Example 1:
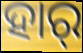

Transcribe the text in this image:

ହାର୍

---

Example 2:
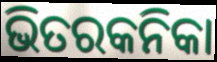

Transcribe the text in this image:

ଭିତରକନିକା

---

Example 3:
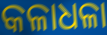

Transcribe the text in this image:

କଳାଧଳା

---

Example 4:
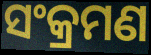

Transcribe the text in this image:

ସଂକ୍ରମଣ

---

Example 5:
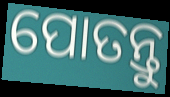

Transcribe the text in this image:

ପୋତନ୍ତୁ